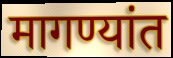
मागण्यांत